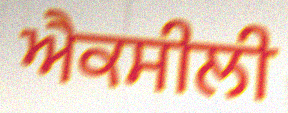
ਐਕਸੀਲੀ